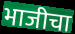
भाजीचा